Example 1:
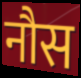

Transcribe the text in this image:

नौस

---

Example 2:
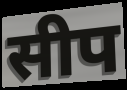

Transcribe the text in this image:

सीप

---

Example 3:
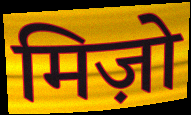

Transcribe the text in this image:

मिज़ो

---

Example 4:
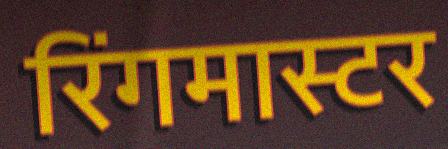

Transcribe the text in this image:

रिंगमास्टर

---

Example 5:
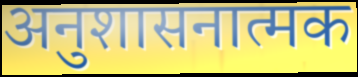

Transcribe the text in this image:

अनुशासनात्मक